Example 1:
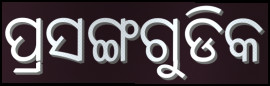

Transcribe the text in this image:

ପ୍ରସଙ୍ଗଗୁଡିକ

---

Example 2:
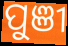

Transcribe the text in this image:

ପୁଞୀ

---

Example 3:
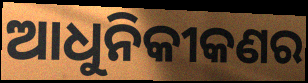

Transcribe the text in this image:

ଆଧୁନିକୀକଣର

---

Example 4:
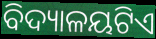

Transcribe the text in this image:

ବିଦ୍ୟାଳୟଟିଏ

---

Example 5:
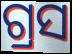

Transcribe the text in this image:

ଗ୍ରସ